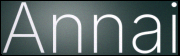
Annai